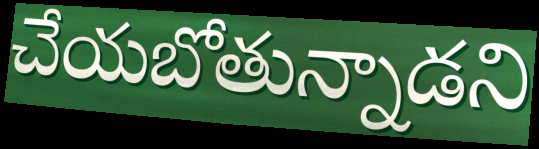
చేయబోతున్నాడని